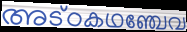
അട്ഠകഥഞ്ചേവ